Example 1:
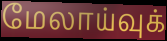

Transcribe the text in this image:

மேலாய்வுக்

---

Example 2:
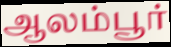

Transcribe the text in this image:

ஆலம்பூர்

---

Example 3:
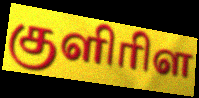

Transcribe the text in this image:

குளிரிள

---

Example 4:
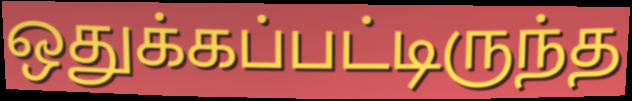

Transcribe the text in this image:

ஒதுக்கப்பட்டிருந்த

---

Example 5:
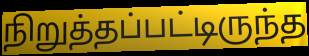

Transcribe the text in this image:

நிறுத்தப்பட்டிருந்த